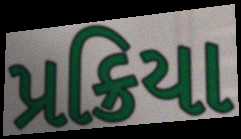
પ્રક્રિયા